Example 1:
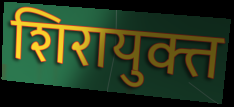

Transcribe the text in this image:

शिरायुक्त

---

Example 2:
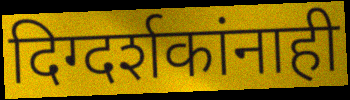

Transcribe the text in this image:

दिग्दर्शकांनाही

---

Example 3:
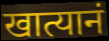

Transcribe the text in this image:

खात्यानं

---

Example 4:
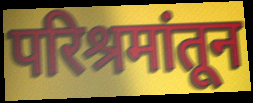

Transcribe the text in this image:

परिश्रमांतून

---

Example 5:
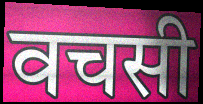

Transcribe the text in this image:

वचसी